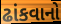
ઢાંકવાનો